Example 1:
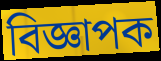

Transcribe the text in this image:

বিজ্ঞাপক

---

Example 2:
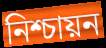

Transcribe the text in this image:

নিশ্চায়ন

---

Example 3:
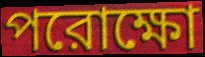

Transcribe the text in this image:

পরোক্ষো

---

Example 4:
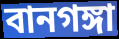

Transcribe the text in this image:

বানগঙ্গা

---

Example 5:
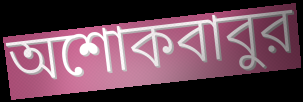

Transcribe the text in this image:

অশোকবাবুর